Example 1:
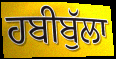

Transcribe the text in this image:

ਹਬੀਬੁੱਲਾ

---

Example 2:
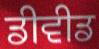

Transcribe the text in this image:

ਡੀਵੀਡ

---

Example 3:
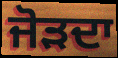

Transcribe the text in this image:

ਜੋੜਦਾ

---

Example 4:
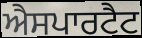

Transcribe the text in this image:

ਐਸਪਾਰਟੈਟ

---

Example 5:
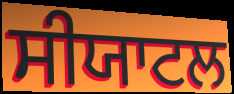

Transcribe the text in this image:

ਸੀਯਾਟਲ